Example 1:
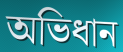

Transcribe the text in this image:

অভিধান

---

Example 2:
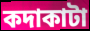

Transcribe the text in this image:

কদাকাটা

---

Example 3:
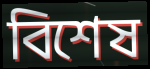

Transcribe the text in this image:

বিশেষ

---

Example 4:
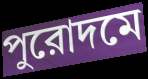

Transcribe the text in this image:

পুরোদমে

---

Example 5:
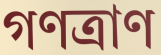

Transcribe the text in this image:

গণত্রাণ